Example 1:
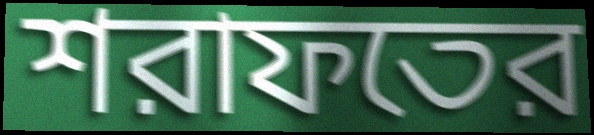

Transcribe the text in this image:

শরাফতের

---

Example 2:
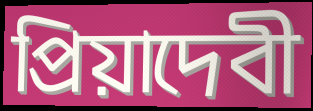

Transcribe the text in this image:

প্রিয়াদেবী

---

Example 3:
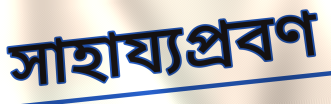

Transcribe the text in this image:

সাহায্যপ্রবণ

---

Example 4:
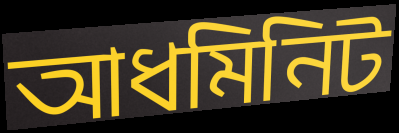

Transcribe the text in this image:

আধমিনিট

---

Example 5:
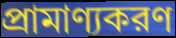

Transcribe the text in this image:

প্রামাণ্যকরণ